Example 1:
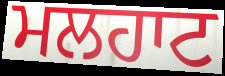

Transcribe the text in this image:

ਮਲਹਾਟ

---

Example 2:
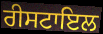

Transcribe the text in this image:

ਰੀਸਟਾਇਲ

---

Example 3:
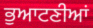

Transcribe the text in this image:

ਭੁਆਟਣੀਆਂ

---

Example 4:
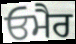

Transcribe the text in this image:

ਓਮੈਰ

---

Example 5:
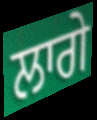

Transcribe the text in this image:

ਲਾਗੇ